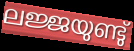
ലജ്ജയുണ്ടു്